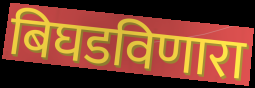
बिघडविणारा